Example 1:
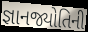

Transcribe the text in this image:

જ્ઞાનજ્યોતિની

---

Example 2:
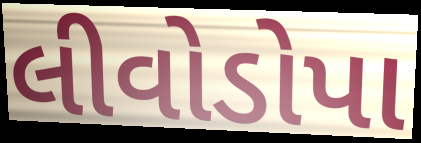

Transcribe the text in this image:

લીવોડોપા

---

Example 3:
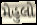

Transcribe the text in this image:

મેહુલો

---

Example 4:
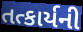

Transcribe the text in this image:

તત્કાર્યની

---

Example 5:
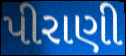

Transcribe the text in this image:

પીરાણી